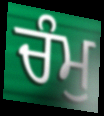
ਚੰਮੁ